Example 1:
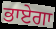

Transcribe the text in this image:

ਭਾਏਗਾ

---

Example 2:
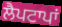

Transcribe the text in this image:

ਲੈਪਟਾਪਾਂ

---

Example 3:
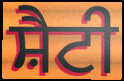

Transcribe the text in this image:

ਸ਼ੈਟੀ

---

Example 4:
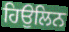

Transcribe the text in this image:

ਹਿਉਲਿਨ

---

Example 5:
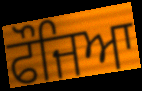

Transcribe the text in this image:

ਫੌਜਿਆ